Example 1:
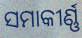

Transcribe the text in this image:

ସମାକୀର୍ଣ୍ଣ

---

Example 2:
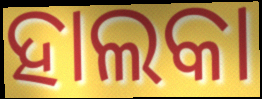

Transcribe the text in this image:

ହାଲକା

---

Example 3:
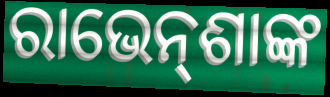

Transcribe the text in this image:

ରାଭେନ୍‌ଶାଙ୍କ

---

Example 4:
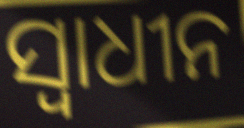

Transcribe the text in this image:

ସ୍ଵାଧୀନ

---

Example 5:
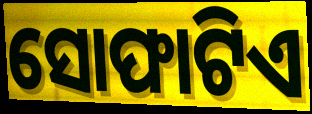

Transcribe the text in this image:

ସୋଫାଟିଏ